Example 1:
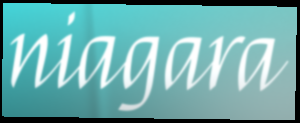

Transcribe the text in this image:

niagara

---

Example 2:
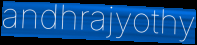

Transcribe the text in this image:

andhrajyothy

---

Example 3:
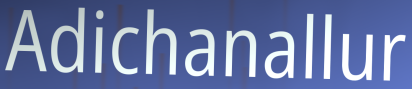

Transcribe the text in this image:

Adichanallur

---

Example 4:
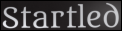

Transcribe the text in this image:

Startled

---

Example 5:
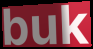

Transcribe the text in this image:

buk